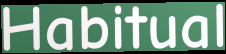
Habitual